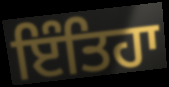
ਇੰਤਿਹਾ